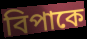
বিপাকে